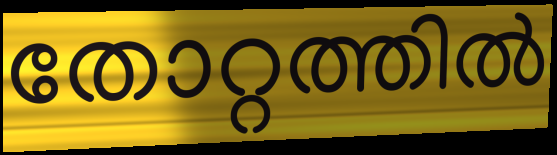
തോറ്റത്തിൽ